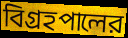
বিগ্রহপালের